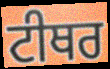
ਟੀਥਰ